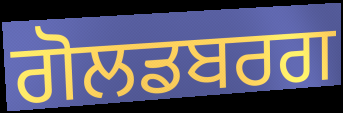
ਗੋਲਡਬਰਗ